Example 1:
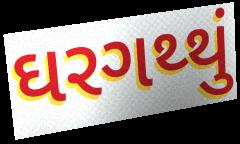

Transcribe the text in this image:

ઘરગથ્થું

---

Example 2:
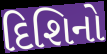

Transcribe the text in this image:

દિશિનો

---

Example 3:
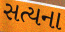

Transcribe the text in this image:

સત્યના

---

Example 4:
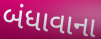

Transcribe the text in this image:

બંધાવાના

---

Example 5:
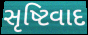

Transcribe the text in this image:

સૃષ્ટિવાદ